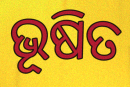
ଭୂଷିତ